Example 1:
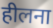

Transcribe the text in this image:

हीलना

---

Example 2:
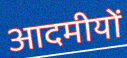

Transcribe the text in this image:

आदमीयों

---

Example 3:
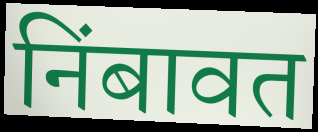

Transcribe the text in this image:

निंबावत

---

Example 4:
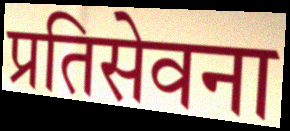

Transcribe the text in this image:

प्रतिसेवना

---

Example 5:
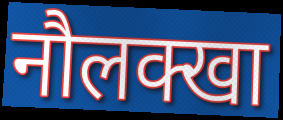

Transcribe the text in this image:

नौलक्खा